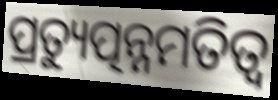
ପ୍ରତ୍ୟୁତ୍ପନ୍ନମତିତ୍ୱ